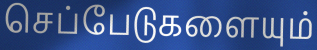
செப்பேடுகளையும்